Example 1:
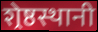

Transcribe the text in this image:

श्रेष्ठस्थानी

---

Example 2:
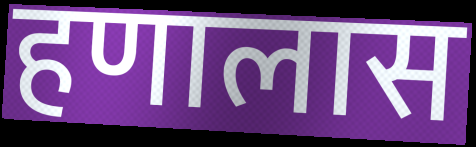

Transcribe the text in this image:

हणालास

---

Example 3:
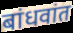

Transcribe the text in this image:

बांधवांत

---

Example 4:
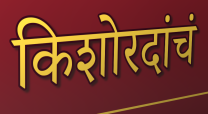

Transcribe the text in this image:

किशोरदांचं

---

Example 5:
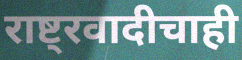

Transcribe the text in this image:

राष्ट्रवादीचाही